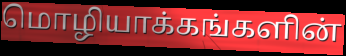
மொழியாக்கங்களின்